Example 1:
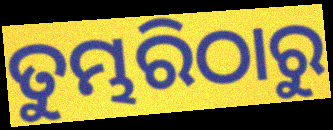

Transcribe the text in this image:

ତୁମ୍ଭରିଠାରୁ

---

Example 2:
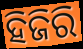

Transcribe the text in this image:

ହିଜିରି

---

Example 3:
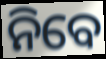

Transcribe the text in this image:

ନିବେ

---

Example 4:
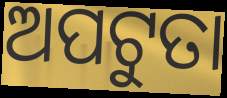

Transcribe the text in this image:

ଅପଟୁତା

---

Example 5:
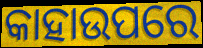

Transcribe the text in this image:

କାହାଉପରେ